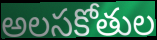
అలసకోతుల